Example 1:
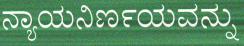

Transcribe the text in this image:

ನ್ಯಾಯನಿರ್ಣಯವನ್ನು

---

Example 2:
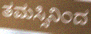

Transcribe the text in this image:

ತಮಸ್ಸಿನಿಂದ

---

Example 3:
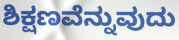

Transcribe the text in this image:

ಶಿಕ್ಷಣವೆನ್ನುವುದು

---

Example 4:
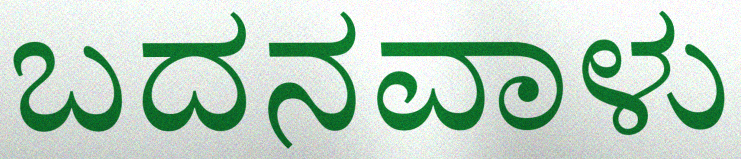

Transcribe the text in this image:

ಬದನವಾಳು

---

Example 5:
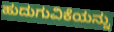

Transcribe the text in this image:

ಹುದುಗುವಿಕೆಯನ್ನು